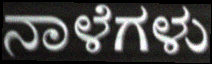
ನಾಳೆಗಳು